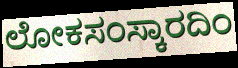
ಲೋಕಸಂಸ್ಕಾರದಿಂ